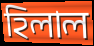
হিলাল